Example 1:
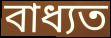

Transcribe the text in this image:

বাধ্যত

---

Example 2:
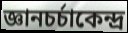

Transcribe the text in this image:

জ্ঞানচর্চাকেন্দ্র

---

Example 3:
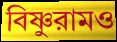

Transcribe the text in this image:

বিষ্ণুরামও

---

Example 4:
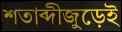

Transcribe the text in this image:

শতাব্দীজুড়েই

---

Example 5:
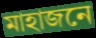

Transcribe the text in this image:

মাহাজনে